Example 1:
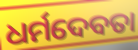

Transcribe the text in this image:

ଧର୍ମଦେବତା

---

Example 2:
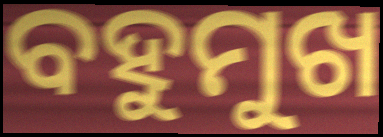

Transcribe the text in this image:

ବହୁମୁଖ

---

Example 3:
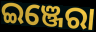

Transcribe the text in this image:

ଇଞ୍ଜେରା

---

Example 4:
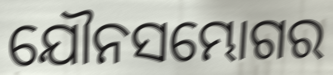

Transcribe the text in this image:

ଯୌନସମ୍ଭୋଗର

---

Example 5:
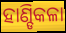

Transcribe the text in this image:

ହାଣ୍ଡିକଳା